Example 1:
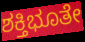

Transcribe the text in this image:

ಶಕ್ತಿಭೂತೇ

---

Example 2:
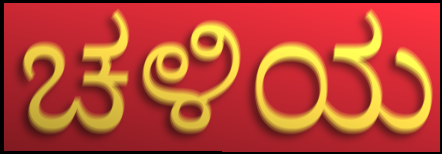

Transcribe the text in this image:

ಚಳಿಯ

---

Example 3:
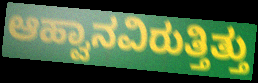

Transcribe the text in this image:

ಆಹ್ವಾನವಿರುತ್ತಿತ್ತು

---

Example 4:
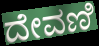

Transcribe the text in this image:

ದೇವಣಿ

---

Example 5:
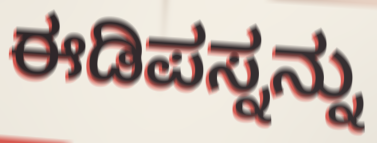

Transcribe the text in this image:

ಈಡಿಪಸ್ನನ್ನು